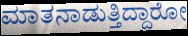
ಮಾತನಾಡುತ್ತಿದ್ದಾರೋ